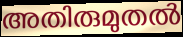
അതിരുമുതൽ